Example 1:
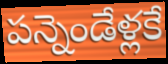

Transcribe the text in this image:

పన్నెండేళ్లకే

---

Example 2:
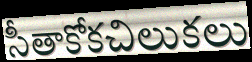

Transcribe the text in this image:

సీతాకోకచిలుకలు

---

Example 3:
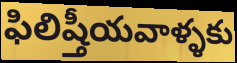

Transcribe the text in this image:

ఫిలిష్తీయవాళ్ళకు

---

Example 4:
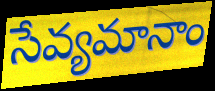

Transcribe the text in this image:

సేవ్యమానాం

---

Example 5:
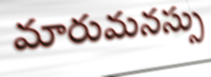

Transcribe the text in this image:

మారుమనస్సు